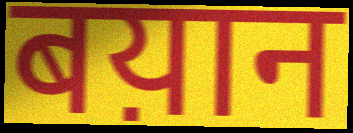
बय़ान